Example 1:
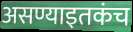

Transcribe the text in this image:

असण्याइतकंच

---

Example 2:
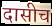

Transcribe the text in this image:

दासीच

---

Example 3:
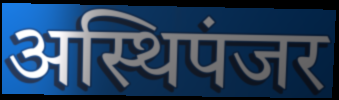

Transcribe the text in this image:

अस्थिपंजर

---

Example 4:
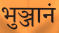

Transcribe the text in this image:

भुञ्जानं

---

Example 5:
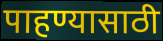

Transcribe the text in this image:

पाहण्यासाठी